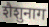
शैशुनाग